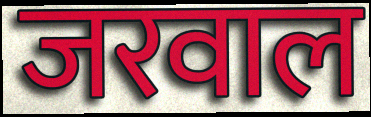
जरवाल